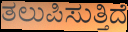
ತಲುಪಿಸುತ್ತಿದೆ